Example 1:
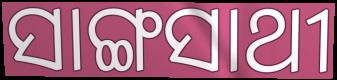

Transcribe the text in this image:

ସାଙ୍ଗସାଥୀ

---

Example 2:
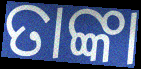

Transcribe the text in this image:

ତାଙ୍କା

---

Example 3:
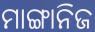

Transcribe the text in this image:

ମାଙ୍ଗାନିଜ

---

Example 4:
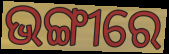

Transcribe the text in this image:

ଭଙ୍ଗୀରେ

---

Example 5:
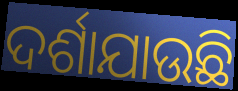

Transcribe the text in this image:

ଦର୍ଶାଯାଉଛି